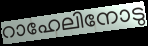
റാഹേലിനോടു